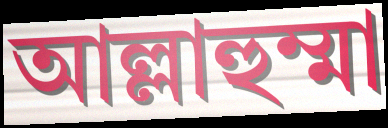
আল্লাহুম্মা